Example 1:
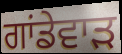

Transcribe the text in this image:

ਗਾਂਡੇਵਾੜ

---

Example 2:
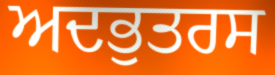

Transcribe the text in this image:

ਅਦਭੁਤਰਸ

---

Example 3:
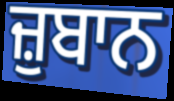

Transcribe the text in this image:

ਜ਼ੁਬਾਨ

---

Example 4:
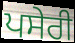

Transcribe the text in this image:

ਪਸੇਰੀ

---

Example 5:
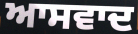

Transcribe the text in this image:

ਆਸਵਾਦ